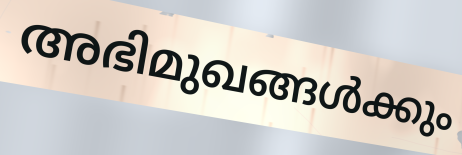
അഭിമുഖങ്ങൾക്കും